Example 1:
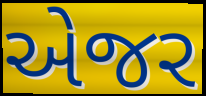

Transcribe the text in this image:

એજર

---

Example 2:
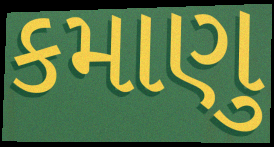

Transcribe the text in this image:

કમાણુ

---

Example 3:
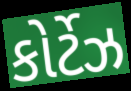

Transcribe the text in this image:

કોર્ટેઝ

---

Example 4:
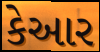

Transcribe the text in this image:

કેઆર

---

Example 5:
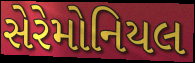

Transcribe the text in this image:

સેરેમોનિયલ